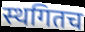
स्थगितच